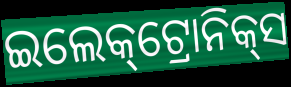
ଇଲେକ୍‌ଟ୍ରୋନିକ୍‌ସ